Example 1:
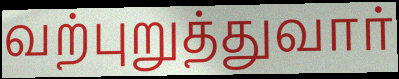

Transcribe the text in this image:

வற்புறுத்துவார்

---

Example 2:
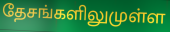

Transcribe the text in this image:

தேசங்களிலுமுள்ள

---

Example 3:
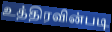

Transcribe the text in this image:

உத்திரவின்படி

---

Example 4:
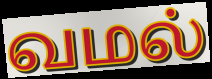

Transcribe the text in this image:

வமல்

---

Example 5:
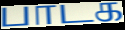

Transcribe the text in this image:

பாடக